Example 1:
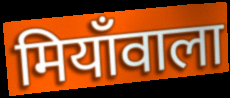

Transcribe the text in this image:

मियाँवाला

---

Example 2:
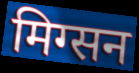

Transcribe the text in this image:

मिग्सन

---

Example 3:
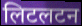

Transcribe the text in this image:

लिटलटन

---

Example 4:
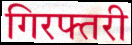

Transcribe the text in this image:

गिरफ्तरी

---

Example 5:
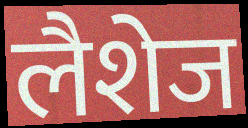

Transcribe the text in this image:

लैशेज